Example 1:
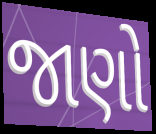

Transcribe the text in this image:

જાણો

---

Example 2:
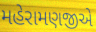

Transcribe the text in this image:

મહેરામણજીએ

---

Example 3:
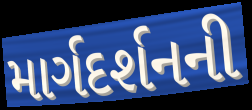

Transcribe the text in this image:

માર્ગદર્શનની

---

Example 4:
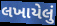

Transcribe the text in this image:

લખાયેલું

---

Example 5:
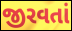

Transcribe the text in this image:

જીરવતાં